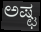
ಅಷ್ಟ